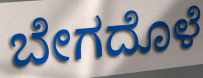
ಬೇಗದೊಳೆ